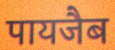
पायजैब